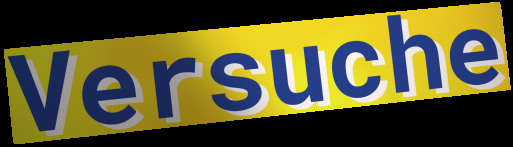
Versuche